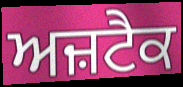
ਅਜ਼ਟੈਕ